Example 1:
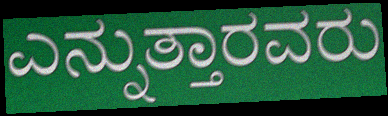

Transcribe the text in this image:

ಎನ್ನುತ್ತಾರವರು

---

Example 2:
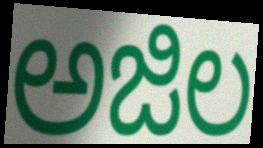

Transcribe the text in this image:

ಅಜಿಲ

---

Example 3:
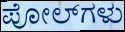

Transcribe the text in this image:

ಪೋಲ್‌ಗಳು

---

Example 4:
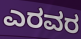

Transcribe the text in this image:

ಎರವರ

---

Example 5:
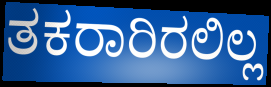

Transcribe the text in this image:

ತಕರಾರಿರಲಿಲ್ಲ